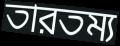
তারতম্য